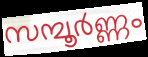
സമ്പൂർണ്ണം